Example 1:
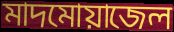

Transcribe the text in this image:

মাদমোয়াজেল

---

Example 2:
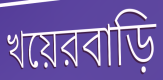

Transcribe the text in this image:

খয়েরবাড়ি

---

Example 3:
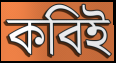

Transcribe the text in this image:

কবিই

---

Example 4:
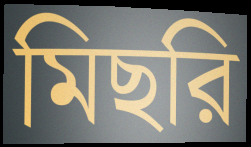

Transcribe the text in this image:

মিছরি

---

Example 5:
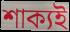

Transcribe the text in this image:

শাক্যই